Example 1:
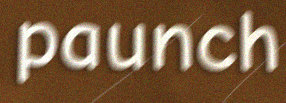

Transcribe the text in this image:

paunch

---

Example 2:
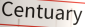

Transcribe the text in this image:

Centuary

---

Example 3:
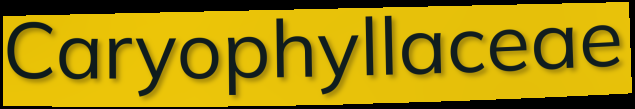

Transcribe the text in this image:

Caryophyllaceae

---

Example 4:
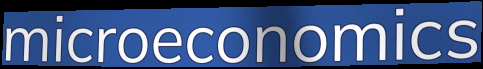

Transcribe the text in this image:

microeconomics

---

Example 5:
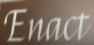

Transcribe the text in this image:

Enact